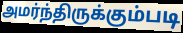
அமர்ந்திருக்கும்படி